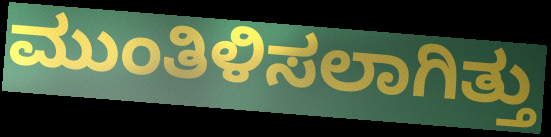
ಮುಂತಿಳಿಸಲಾಗಿತ್ತು